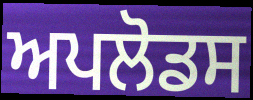
ਅਪਲੋਡਸ